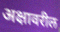
अक्षावरील